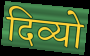
दिव्यो